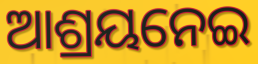
ଆଶ୍ରୟନେଇ